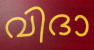
വിദാ